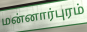
மன்னார்புரம்